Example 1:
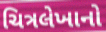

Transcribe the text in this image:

ચિત્રલેખાનો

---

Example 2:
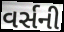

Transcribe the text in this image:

વર્સની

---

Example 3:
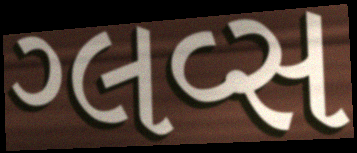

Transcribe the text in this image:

ગ્લવ્સ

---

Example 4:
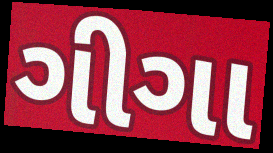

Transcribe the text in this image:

ગીગા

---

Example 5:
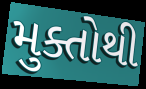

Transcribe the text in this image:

મુક્તોથી